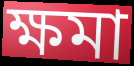
ক্ষমা